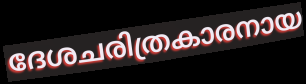
ദേശചരിത്രകാരനായ